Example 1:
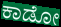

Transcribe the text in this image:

ಕಾಡೋ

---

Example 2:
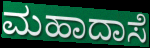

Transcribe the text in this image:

ಮಹಾದಾಸೆ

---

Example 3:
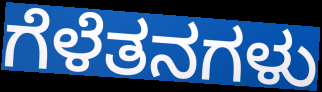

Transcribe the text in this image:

ಗೆಳೆತನಗಳು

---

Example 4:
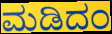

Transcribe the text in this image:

ಮಡಿದಂ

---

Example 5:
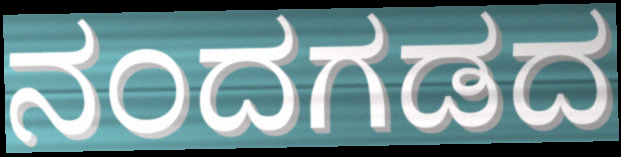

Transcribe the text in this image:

ನಂದಗಡದ